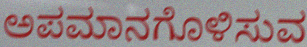
ಅಪಮಾನಗೊಳಿಸುವ